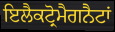
ਇਲੈਕਟ੍ਰੋਮੈਗਨੈਟਾਂ